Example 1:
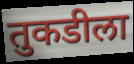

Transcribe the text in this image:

तुकडीला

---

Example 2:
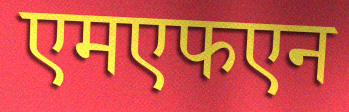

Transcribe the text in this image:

एमएफएन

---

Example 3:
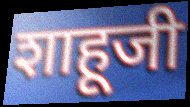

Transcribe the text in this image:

शाहूजी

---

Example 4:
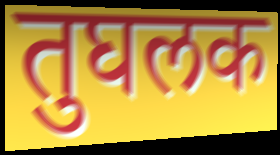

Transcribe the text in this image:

तुघलक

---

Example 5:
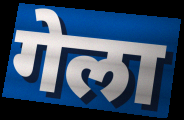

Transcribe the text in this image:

गेला